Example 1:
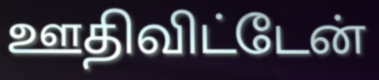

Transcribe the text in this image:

ஊதிவிட்டேன்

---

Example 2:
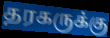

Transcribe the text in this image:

தரகருக்கு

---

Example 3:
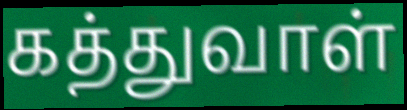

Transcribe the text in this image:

கத்துவாள்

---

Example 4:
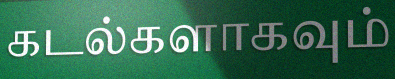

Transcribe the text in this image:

கடல்களாகவும்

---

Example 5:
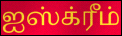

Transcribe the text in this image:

ஐஸ்க்ரீம்